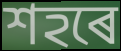
শহৰে